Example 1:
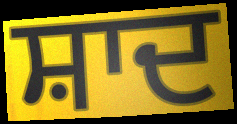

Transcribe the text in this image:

ਸ਼ਾਦ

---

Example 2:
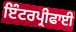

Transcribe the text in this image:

ਇੰਟਰਪ੍ਰੀਫਾਈ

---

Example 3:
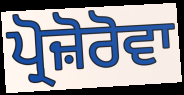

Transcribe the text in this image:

ਪ੍ਰੋਜ਼ੋਰੋਵਾ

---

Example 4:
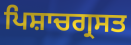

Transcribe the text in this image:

ਪਿਸ਼ਾਚਗ੍ਰਸਤ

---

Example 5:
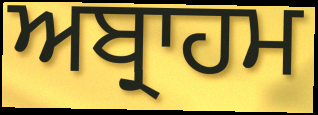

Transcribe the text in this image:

ਅਬ੍ਰਾਹਮ